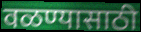
वळण्यासाठी